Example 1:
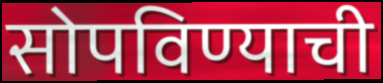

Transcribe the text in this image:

सोपविण्याची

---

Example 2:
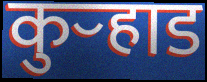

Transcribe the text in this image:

कुऱ्हाड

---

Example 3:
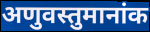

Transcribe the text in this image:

अणुवस्तुमानांक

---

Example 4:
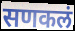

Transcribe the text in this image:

सणकलं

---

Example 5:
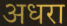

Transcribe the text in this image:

अधरा